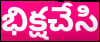
భిక్షచేసి